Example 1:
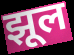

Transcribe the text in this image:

झूल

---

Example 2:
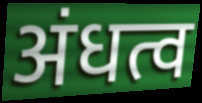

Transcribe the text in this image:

अंधत्व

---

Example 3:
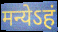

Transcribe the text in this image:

मन्येऽहं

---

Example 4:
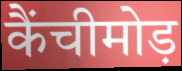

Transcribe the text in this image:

कैंचीमोड़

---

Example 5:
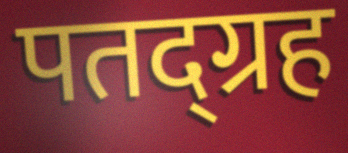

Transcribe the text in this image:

पतद्ग्रह